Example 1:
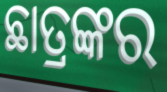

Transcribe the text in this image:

ଛାତ୍ରଙ୍କର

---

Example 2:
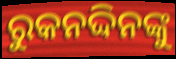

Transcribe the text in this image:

ରୁକନଦ୍ଦିନଙ୍କୁ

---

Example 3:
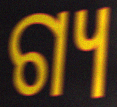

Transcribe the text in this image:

ଗ୍ୟ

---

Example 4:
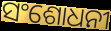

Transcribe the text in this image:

ସଂଶୋଧନୀ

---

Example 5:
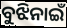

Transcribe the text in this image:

ବୁଝିନାଇଁ